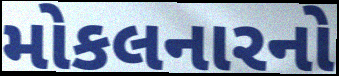
મોકલનારનો